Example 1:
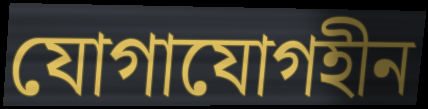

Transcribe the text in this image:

যোগাযোগহীন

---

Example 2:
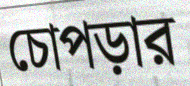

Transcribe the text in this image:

চোপড়ার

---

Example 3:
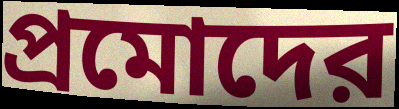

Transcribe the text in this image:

প্রমোদের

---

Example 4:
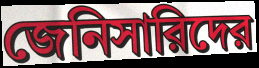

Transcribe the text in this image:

জেনিসারিদের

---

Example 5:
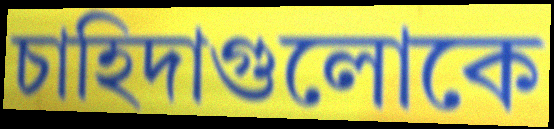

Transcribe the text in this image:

চাহিদাগুলোকে